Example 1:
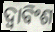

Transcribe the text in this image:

ଦ୍ଵାବିଂଶ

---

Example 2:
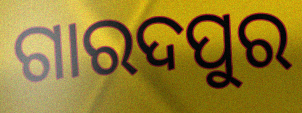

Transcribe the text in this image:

ଗାରଦପୁର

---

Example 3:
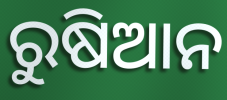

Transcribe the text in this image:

ରୁଷିଆନ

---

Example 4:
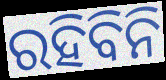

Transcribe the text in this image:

ରହିବିନି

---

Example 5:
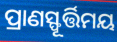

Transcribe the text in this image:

ପ୍ରାଣସ୍ଫୂର୍ତ୍ତିମୟ